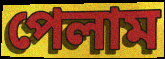
পেলাম